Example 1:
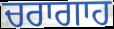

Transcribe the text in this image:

ਚਰਾਗਾਹ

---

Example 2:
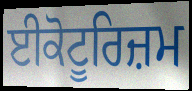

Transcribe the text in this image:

ਈਕੋਟੂਰਿਜ਼ਮ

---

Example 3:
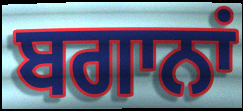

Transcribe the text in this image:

ਬਗਾਨਾਂ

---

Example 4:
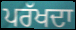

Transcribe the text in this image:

ਪਰੱਖਦਾ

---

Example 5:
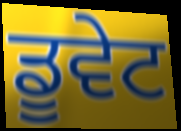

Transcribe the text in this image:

ਡੂਵੇਟ